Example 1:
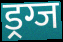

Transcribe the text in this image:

ड्रग्ज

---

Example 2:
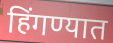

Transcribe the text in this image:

हिंगण्यात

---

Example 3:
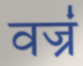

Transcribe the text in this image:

वज्रं॑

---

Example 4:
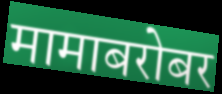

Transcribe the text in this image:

मामाबरोबर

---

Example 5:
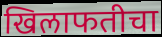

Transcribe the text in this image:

खिलाफतीचा